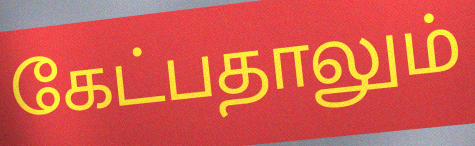
கேட்பதாலும்